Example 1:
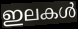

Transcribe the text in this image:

ഇലകൾ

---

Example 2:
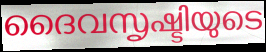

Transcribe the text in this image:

ദൈവസൃഷ്ടിയുടെ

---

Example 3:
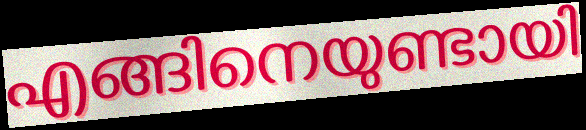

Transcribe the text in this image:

എങ്ങിനെയുണ്ടായി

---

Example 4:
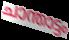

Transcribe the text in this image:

ചാന്താട്ടം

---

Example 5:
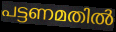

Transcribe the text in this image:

പട്ടണമതിൽ